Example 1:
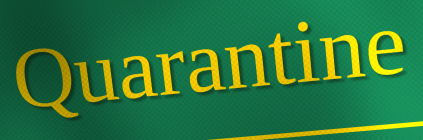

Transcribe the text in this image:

Quarantine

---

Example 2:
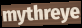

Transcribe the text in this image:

mythreye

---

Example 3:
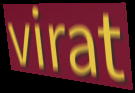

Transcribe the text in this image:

virat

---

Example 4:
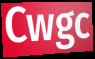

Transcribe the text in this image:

Cwgc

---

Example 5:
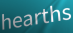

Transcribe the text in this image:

hearths